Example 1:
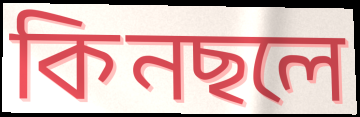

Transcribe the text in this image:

কিনছলে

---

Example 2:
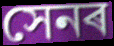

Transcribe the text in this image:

সেনৰ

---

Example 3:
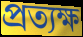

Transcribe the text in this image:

প্ৰত্যক্ষ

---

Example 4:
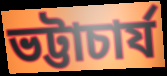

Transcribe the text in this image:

ভট্টাচাৰ্য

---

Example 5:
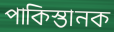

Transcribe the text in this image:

পাকিস্তানক